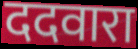
ददवारा